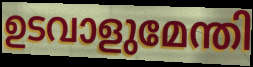
ഉടവാളുമേന്തി